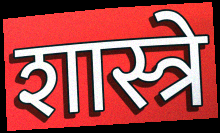
शास्त्रे